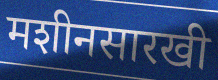
मशीनसारखी